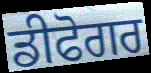
ਡੀਫੋਗਰ